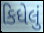
કિધેલું